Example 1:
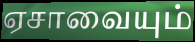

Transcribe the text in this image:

ஏசாவையும்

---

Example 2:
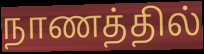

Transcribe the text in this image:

நாணத்தில்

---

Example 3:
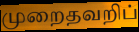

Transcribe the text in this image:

முறைதவறிப்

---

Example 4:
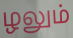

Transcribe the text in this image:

ழலும்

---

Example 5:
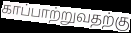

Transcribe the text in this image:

காப்பாற்றுவதற்கு